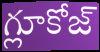
గ్లూకోజ్